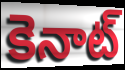
కెనాట్